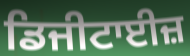
ਡਿਜੀਟਾਈਜ਼